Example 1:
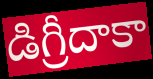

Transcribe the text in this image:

డిగ్రీదాకా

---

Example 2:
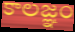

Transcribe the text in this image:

కాలజ్ఞం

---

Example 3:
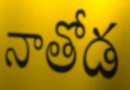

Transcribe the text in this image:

నాతోడ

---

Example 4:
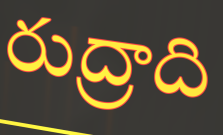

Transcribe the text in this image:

రుద్రాది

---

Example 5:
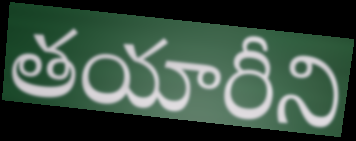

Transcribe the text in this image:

తయారీని